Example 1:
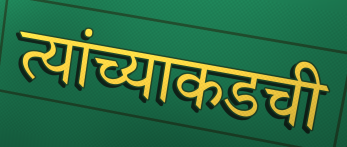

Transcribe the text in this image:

त्यांच्याकडची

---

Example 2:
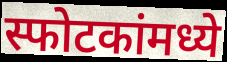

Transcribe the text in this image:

स्फोटकांमध्ये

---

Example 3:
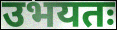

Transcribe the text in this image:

उभयतः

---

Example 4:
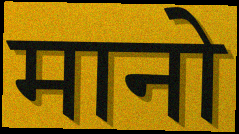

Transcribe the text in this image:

मानो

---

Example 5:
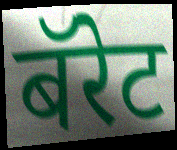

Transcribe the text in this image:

बॅरेट